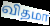
விதமா